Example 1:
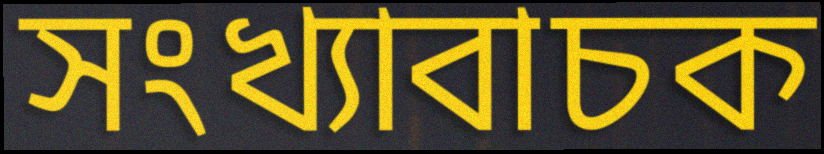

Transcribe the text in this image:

সংখ্যাবাচক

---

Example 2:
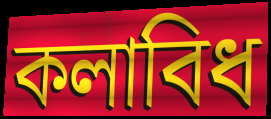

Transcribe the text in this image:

কলাবিধ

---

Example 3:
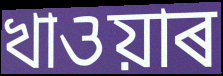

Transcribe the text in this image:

খাওয়াৰ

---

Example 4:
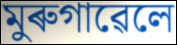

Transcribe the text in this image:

মুৰুগাৱেলে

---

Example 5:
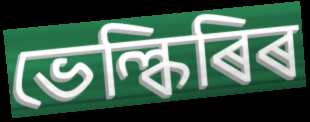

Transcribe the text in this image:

ভেল্কিৰিৰ